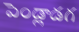
పెండ్లాడగ